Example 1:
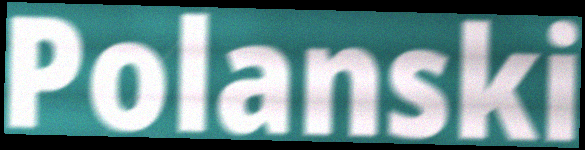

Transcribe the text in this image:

Polanski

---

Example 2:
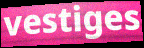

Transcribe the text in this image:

vestiges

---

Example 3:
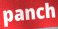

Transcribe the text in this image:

panch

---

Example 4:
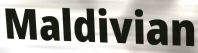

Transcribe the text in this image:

Maldivian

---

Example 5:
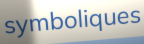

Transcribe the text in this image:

symboliques